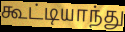
கூட்டியாந்து